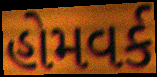
હોમવર્ક